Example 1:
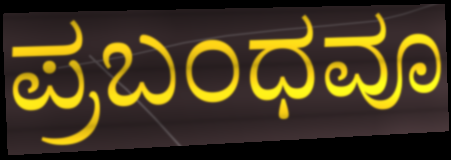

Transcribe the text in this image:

ಪ್ರಬಂಧವೂ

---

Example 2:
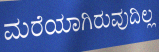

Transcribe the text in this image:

ಮರೆಯಾಗಿರುವುದಿಲ್ಲ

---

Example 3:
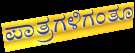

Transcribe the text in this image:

ಪಾತ್ರಗಳಿಗಂತೂ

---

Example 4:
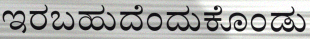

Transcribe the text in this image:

ಇರಬಹುದೆಂದುಕೊಂಡು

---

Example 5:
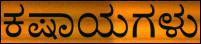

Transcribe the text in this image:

ಕಷಾಯಗಳು